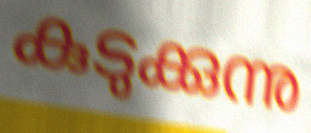
കുടുക്കുന്നു